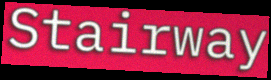
Stairway